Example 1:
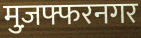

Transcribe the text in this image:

मुज़फ्फरनगर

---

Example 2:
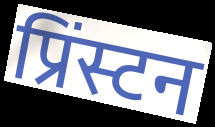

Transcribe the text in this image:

प्रिंस्टन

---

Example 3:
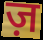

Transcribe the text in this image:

ज़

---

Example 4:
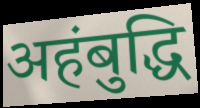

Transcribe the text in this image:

अहंबुद्धि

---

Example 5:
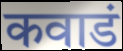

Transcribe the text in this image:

कवाडं